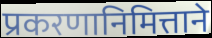
प्रकरणानिमित्ताने